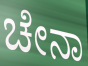
ಚೇನಾ